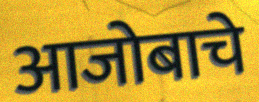
आजोबाचे